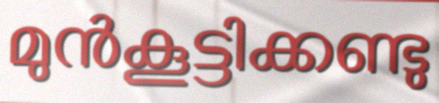
മുൻകൂട്ടിക്കണ്ടു